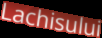
Lachisului